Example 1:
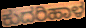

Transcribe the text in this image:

ಕುದರಿಹಾಳ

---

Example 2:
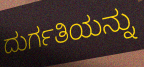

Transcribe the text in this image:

ದುರ್ಗತಿಯನ್ನು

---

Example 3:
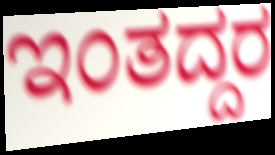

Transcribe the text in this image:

ಇಂತದ್ದರ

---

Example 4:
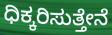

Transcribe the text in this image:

ಧಿಕ್ಕರಿಸುತ್ತೇನೆ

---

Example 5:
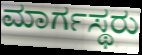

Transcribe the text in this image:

ಮಾರ್ಗಸ್ಥರು